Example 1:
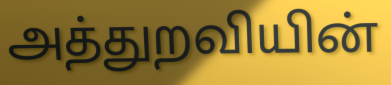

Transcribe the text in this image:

அத்துறவியின்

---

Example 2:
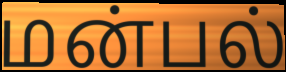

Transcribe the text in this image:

மன்பல்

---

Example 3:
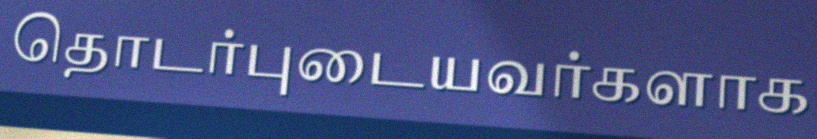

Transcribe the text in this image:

தொடர்புடையவர்களாக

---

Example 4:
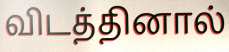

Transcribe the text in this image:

விடத்தினால்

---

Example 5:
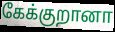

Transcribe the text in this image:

கேக்குறானா